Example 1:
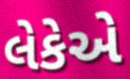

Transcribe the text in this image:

લેકેએ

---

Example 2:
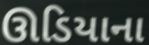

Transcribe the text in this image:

ઊડિયાના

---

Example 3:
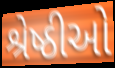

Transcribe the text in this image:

શ્રેષ્ઠીઓ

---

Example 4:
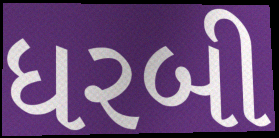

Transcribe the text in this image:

ધરબી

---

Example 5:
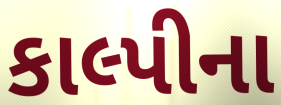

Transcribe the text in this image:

કાલ્પીના